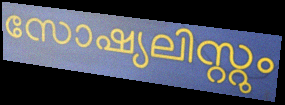
സോഷ്യലിസ്റ്റും